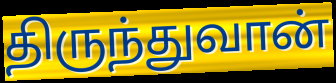
திருந்துவான்